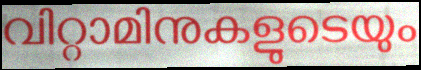
വിറ്റാമിനുകളുടെയും